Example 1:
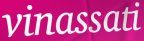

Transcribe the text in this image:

vinassati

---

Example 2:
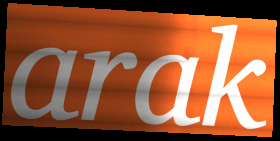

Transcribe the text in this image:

arak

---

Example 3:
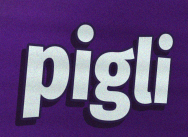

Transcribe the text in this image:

pigli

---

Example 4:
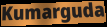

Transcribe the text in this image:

Kumarguda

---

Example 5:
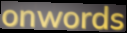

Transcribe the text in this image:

onwords